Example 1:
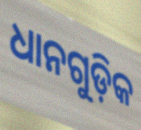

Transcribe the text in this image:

ଧାନଗୁଡ଼ିକ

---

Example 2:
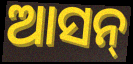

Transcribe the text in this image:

ଆସନ୍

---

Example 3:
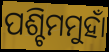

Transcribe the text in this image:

ପଶ୍ଚିମମୁହାଁ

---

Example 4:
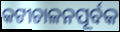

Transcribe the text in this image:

କଟୀଚାଳନପୂର୍ବକ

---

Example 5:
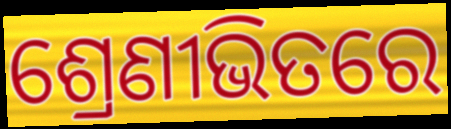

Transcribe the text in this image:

ଶ୍ରେଣୀଭିତରେ